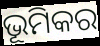
ଭୂମିକର